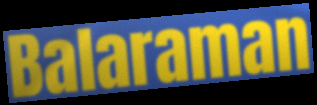
Balaraman